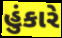
હુંકારે